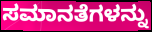
ಸಮಾನತೆಗಳನ್ನು